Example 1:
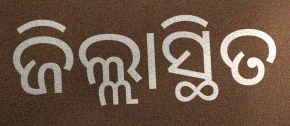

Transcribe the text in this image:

ଜିଲ୍ଲାସ୍ଥିତ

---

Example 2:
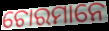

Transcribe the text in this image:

ଚୋରମାନେ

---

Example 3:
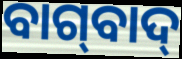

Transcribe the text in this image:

ବାଗ୍‌ବାଦ୍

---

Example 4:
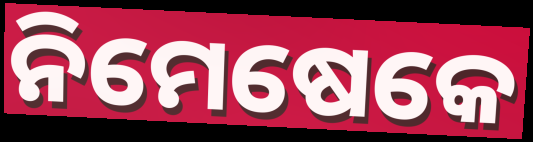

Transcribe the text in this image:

ନିମେଷେକେ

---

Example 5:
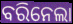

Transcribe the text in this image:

ବରିନେଲା